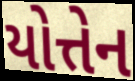
યોત્તેન